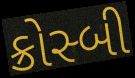
ક્રોસ્બી